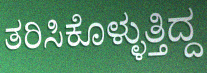
ತರಿಸಿಕೊಳ್ಳುತ್ತಿದ್ದ